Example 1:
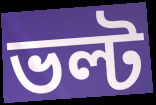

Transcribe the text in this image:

ভল্ট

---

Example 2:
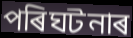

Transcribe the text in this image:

পৰিঘটনাৰ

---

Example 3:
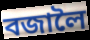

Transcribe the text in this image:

বজালৈ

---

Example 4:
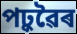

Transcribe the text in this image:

পঢ়ুৱৈৰ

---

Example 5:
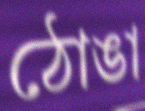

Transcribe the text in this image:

ঠোঙা